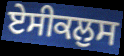
ਏਸੀਕਲੁਸ